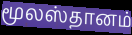
மூலஸ்தானம்